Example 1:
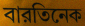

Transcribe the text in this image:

বারতিনেক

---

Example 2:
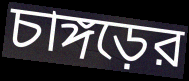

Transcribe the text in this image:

চাঙ্গড়ের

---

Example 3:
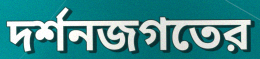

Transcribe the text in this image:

দর্শনজগতের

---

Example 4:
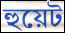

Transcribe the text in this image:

হুয়েট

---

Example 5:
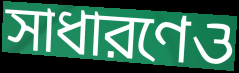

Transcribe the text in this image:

সাধারণেও